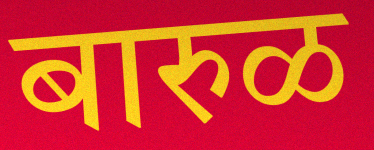
बारुळ